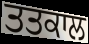
ਤਤਕਾਲ